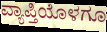
ವ್ಯಾಪ್ತಿಯೊಳಗೂ